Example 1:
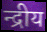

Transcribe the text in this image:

न्द्रीय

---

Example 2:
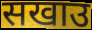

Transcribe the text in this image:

सखाउ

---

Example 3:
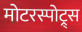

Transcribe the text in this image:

मोटरस्पोट्र्स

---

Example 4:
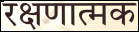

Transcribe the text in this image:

रक्षणात्मक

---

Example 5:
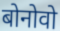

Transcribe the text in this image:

बोनोवो